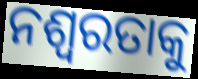
ନଶ୍ବରତାକୁ